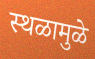
स्थळामुळे